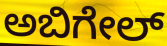
ಅಬಿಗೇಲ್